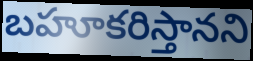
బహూకరిస్తానని